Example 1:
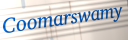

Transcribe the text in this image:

Coomarswamy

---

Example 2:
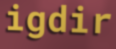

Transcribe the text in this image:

igdir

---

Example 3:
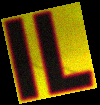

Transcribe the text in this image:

IL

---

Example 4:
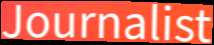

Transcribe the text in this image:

Journalist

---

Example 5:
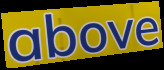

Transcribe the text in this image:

above